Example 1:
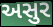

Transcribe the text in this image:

અસુર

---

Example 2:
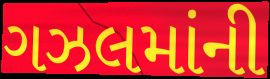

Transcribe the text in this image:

ગઝલમાંની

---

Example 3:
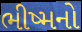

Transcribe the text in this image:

ભીષ્મનો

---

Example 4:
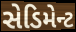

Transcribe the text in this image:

સેડિમેન્ટ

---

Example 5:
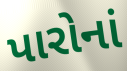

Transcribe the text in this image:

પારોનાં